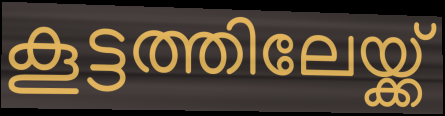
കൂട്ടത്തിലേയ്ക്ക്